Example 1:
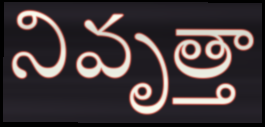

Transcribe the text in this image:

నివృత్తా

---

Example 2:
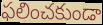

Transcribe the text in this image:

ఫలించకుండా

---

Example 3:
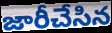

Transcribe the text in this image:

జారీచేసిన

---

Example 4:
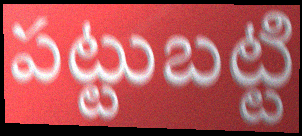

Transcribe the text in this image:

పట్టుబట్టి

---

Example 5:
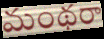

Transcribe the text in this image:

మంథరా